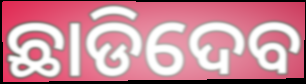
ଛାଡିଦେବ